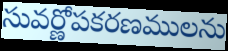
సువర్ణోపకరణములను